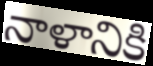
నాళానికి